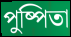
পুষ্পিতা